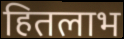
हितलाभ